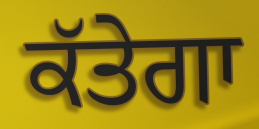
ਕੱਤੇਗਾ